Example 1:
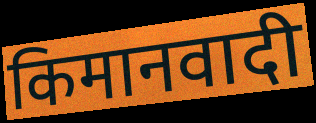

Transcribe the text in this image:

किमानवादी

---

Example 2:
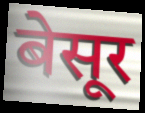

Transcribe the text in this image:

बेसूर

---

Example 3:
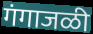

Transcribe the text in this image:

गंगाजळी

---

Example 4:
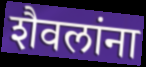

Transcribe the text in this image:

शैवलांना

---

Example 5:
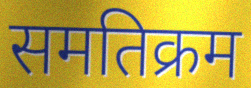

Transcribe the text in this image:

समतिक्रम